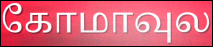
கோமாவுல